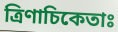
ত্রিণাচিকেতাঃ